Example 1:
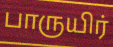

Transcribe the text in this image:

பாருயிர்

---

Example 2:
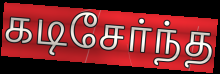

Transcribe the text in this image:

கடிசேர்ந்த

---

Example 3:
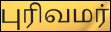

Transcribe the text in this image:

புரிவமர்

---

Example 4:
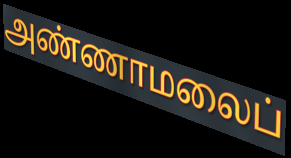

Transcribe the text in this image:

அண்ணாமலைப்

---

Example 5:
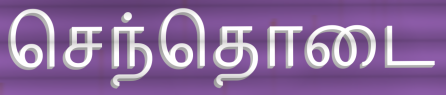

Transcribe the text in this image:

செந்தொடை